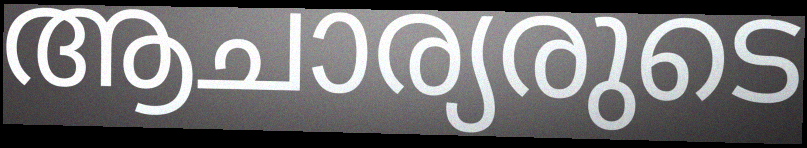
ആചാര്യരുടെ